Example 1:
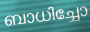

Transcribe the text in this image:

ബാധിച്ചോ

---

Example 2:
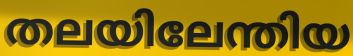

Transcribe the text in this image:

തലയിലേന്തിയ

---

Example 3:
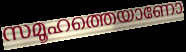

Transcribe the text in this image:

സമൂഹത്തെയാണോ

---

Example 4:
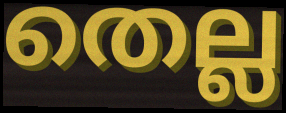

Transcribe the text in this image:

തെല്ല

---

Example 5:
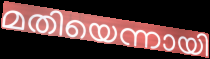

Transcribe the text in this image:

മതിയെന്നായി